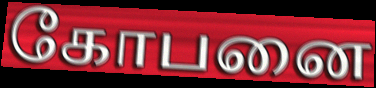
கோபனை